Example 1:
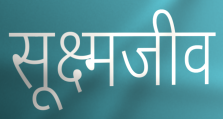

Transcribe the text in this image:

सूक्ष्मजीव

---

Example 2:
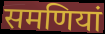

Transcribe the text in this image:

समणियां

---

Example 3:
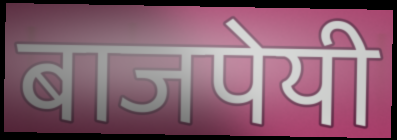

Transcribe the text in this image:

बाजपेयी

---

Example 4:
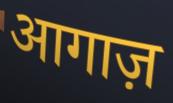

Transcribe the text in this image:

आगाज़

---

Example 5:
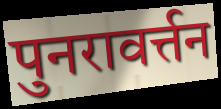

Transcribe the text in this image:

पुनरावर्त्तन